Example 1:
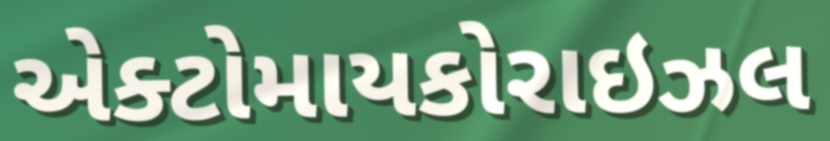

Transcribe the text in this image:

એક્ટોમાયકોરાઇઝલ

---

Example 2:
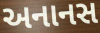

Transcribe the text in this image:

અનાનસ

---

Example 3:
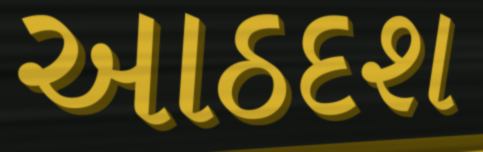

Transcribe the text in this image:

આઠદશ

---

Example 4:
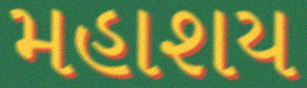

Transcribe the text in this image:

મહાશય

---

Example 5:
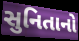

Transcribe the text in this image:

સુનિતાનો